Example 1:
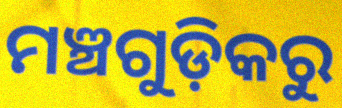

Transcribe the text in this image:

ମଞ୍ଚଗୁଡ଼ିକରୁ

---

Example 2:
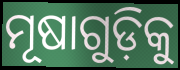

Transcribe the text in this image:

ମୂଷାଗୁଡ଼ିକୁ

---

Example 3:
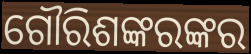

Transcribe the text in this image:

ଗୌରିଶଙ୍କରଙ୍କର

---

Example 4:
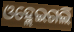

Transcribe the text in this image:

ଓହ୍ଲେଇଗଲି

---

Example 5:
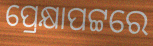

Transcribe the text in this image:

ପ୍ରେକ୍ଷାପଟ୍ଟରେ